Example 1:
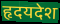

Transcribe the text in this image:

हृदयदेश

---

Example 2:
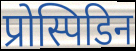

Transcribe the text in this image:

प्रोस्पिडिन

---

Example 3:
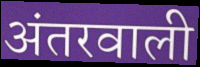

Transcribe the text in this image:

अंतरवाली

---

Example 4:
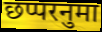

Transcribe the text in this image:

छप्परनुमा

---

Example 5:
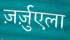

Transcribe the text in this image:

ज़र्ज़ुएला